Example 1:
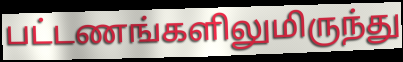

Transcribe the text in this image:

பட்டணங்களிலுமிருந்து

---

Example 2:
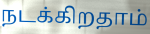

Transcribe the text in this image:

நடக்கிறதாம்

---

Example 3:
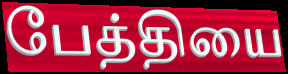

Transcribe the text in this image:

பேத்தியை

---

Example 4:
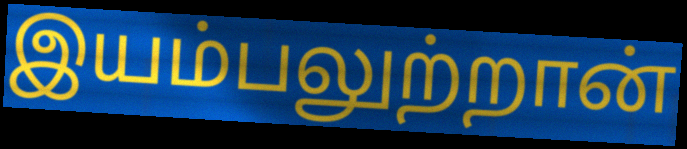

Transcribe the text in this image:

இயம்பலுற்றான்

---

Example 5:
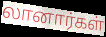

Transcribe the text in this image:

லானார்கள்